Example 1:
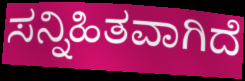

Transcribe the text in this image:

ಸನ್ನಿಹಿತವಾಗಿದೆ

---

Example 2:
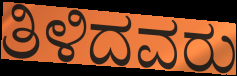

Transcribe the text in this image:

ತಿಳಿದವರು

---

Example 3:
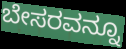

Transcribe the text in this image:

ಬೇಸರವನ್ನೂ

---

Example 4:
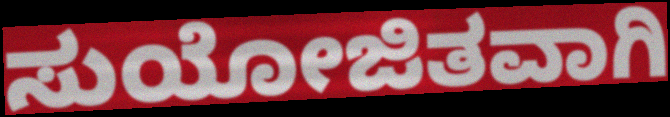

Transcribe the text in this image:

ಸುಯೋಜಿತವಾಗಿ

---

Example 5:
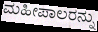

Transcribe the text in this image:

ಮಹೀಪಾಲರನ್ನು